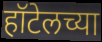
हॉटेलच्या